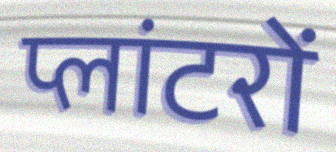
प्लांटरों